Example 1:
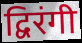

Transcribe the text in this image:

द्विरंगी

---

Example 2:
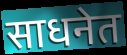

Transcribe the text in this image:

साधनेत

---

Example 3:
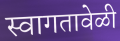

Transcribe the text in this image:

स्वागतावेळी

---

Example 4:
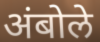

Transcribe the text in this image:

अंबोले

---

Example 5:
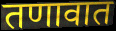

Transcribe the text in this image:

तणावात